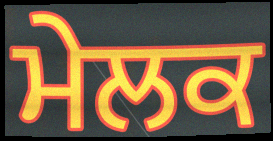
ਮੇਲਕ